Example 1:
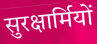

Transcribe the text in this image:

सुरक्षार्मियों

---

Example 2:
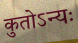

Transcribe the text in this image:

कुतोऽन्यः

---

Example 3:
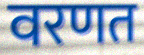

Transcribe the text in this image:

वरणत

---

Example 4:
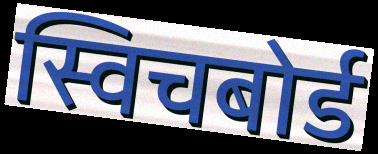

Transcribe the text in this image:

स्विचबोर्ड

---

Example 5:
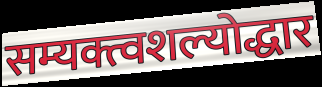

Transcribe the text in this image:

सम्यक्त्वशल्योद्धार